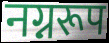
नग्नरूप